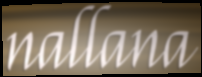
nallana